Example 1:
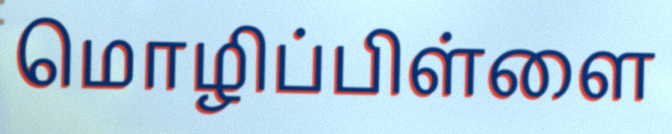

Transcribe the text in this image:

மொழிப்பிள்ளை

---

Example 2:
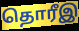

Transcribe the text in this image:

தொரீஇ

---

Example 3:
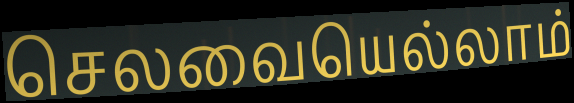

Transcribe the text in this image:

செலவையெல்லாம்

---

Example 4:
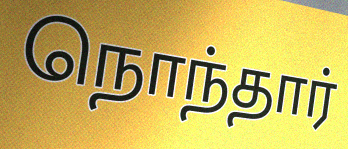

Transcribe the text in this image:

நொந்தார்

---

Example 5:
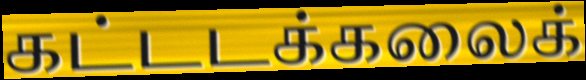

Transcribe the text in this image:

கட்டடக்கலைக்